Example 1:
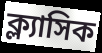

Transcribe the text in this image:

ক্ল্যাসিক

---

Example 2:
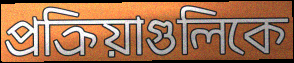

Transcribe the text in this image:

প্রক্রিয়াগুলিকে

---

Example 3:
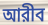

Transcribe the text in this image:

আরীব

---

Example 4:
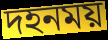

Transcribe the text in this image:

দহনময়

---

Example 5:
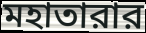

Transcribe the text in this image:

মহাতারার